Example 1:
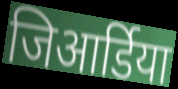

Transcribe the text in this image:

जिआर्डिया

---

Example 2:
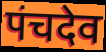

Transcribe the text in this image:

पंचदेव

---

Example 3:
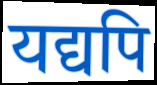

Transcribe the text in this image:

यद्यपि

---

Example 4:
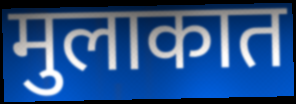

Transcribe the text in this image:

मुलाकात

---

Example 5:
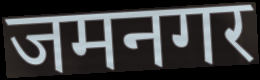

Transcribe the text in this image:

जमनगर